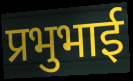
प्रभुभाई